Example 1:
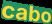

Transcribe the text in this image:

cabo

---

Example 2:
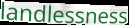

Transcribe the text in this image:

landlessness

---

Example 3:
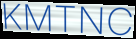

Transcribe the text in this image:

KMTNC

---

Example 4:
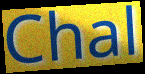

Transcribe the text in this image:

Chal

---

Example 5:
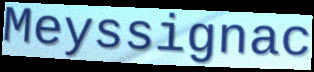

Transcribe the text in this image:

Meyssignac